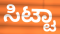
ಸಿಟ್ಟಾ